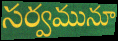
సర్వమునూ